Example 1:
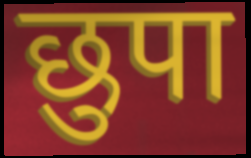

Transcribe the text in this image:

छुपा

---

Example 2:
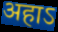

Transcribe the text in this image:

अहाऽ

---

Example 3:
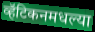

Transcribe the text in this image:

व्हॅटिकनमधल्या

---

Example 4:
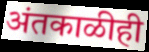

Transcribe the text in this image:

अंतकाळीही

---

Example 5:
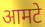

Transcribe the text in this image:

आमटे